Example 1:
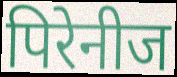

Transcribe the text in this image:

पिरेनीज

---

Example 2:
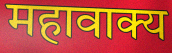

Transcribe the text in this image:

महावाक्य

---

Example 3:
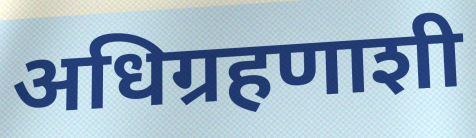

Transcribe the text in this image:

अधिग्रहणाशी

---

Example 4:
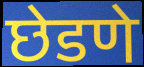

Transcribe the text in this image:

छेडणे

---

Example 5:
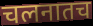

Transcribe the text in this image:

चलनातच